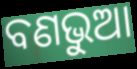
ବଣଭୁଆ